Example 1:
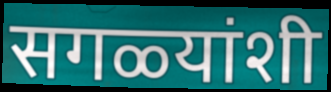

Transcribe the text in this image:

सगळ्यांशी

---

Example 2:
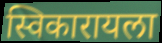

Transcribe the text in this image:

स्विकारायला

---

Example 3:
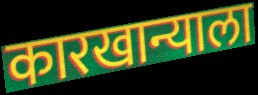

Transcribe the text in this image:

कारखान्याला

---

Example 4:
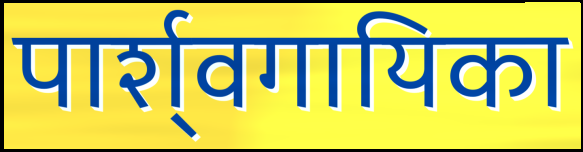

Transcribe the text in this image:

पार्श्वगायिका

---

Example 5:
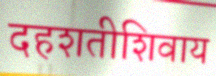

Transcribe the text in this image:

दहशतीशिवाय